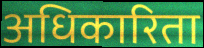
अधिकारिता